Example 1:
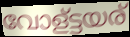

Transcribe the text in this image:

വോള്ട്ടയര്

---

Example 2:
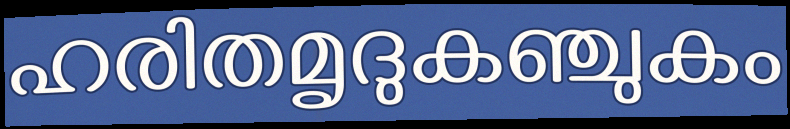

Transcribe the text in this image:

ഹരിതമൃദുകഞ്ചുകം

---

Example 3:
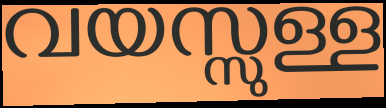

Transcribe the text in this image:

വയസ്സുള്ള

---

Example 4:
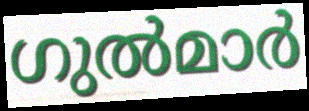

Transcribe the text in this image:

ഗുൽമാർ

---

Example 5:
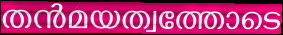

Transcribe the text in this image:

തൻമയത്വത്തോടെ